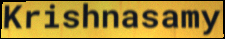
Krishnasamy